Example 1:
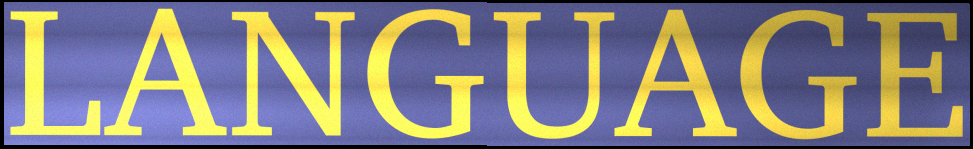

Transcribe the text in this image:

LANGUAGE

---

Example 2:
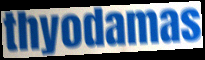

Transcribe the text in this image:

thyodamas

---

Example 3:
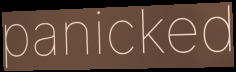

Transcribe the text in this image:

panicked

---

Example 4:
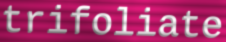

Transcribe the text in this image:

trifoliate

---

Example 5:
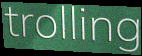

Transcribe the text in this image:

trolling